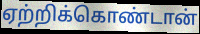
ஏற்றிக்கொண்டான்